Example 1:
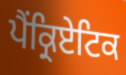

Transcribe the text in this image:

ਪੈਂਕ੍ਰਿਏਟਿਕ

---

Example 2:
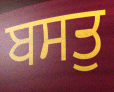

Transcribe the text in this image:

ਬਸਤੁ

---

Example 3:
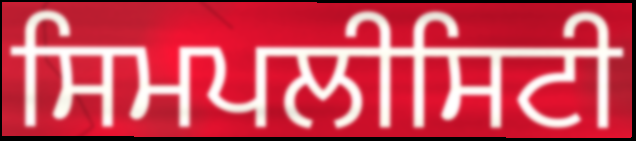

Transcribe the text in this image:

ਸਿਮਪਲੀਸਿਟੀ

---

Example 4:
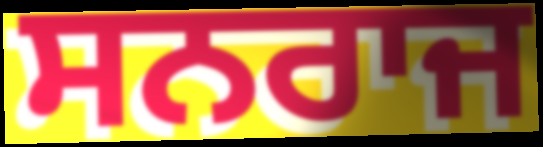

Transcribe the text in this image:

ਸਨਰਾਜ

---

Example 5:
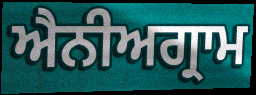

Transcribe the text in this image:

ਐਨੀਅਗ੍ਰਾਮ